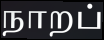
நாறப்